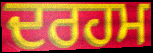
ਦਰਹਮ